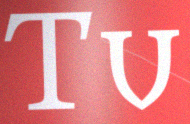
Tu